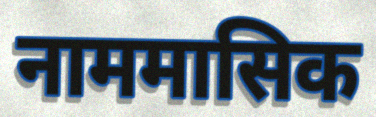
नाममासिक